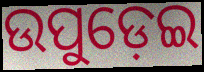
ଉପୁଡ଼େଇ